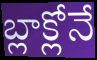
బ్లాక్లోనే